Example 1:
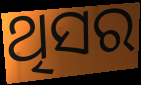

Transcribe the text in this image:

ଥିସର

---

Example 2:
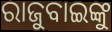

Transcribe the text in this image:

ରାଜୁବାଇଙ୍କୁ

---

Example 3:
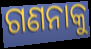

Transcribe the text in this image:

ଗଣନାକୁ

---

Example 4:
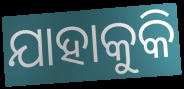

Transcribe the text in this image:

ଯାହାକୁକି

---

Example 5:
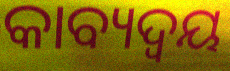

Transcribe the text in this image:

କାବ୍ୟଦ୍ୱୟ